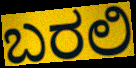
ಬರಲಿ